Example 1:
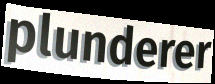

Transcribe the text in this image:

plunderer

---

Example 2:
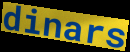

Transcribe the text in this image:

dinars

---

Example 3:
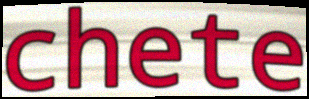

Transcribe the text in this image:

chete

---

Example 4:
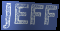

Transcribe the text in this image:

JEFF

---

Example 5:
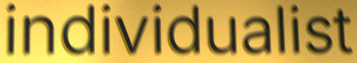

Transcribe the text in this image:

individualist